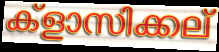
ക്ളാസിക്കല്